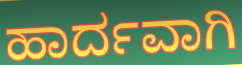
ಹಾರ್ದವಾಗಿ